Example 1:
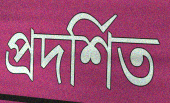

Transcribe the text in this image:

প্ৰদৰ্শিত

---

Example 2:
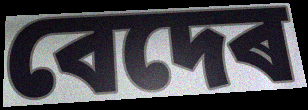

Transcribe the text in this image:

বেদেৰ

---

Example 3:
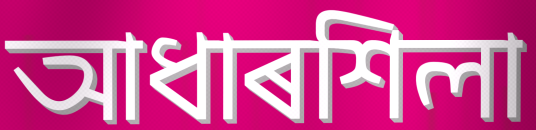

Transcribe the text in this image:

আধাৰশিলা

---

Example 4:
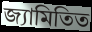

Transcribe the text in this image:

জ্যামিতিত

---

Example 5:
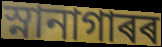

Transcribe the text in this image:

স্নানাগাৰৰ